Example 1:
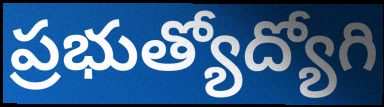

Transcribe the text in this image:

ప్రభుత్యోద్యోగి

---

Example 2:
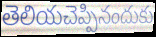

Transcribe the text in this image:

తెలియచెప్పినందుకు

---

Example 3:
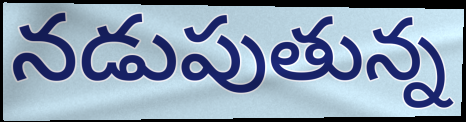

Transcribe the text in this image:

నడుపుతున్న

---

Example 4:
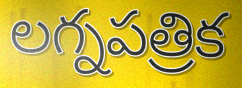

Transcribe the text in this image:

లగ్నపత్రిక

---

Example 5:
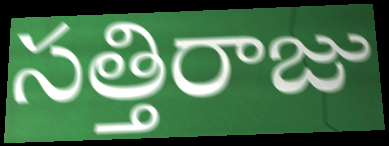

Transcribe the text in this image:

సత్తిరాజు